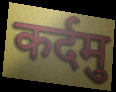
कर्दमु